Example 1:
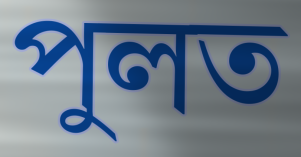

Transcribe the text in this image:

পুলত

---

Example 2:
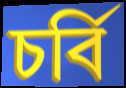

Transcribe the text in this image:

চৰ্বি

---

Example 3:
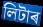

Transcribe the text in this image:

লিটাৰ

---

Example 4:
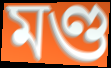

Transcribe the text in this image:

মণ্ড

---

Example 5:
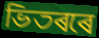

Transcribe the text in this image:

ভিতৰৰে